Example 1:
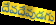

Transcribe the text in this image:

దేవదేవుడగు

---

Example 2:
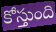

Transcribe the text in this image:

కోస్తుంది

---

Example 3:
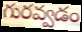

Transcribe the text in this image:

గురవ్వడం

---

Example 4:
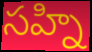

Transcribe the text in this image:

సహ్ని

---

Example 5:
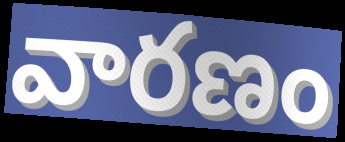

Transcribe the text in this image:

వారణం